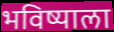
भविष्याला